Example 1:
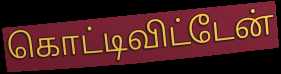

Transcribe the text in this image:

கொட்டிவிட்டேன்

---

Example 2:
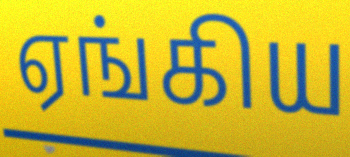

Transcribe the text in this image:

ஏங்கிய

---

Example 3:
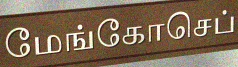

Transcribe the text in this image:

மேங்கோசெப்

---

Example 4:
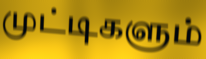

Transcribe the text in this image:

முட்டிகளும்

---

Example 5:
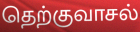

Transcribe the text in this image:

தெற்குவாசல்